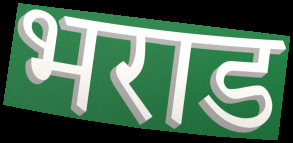
भराड